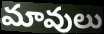
మావులు